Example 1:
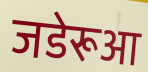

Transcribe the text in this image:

जडेरूआ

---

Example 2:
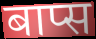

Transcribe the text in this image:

बाप्स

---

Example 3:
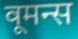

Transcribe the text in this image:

वूमन्स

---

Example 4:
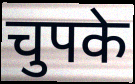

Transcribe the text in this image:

चुपके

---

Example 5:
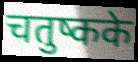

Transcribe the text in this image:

चतुष्कके